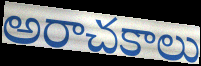
అరాచకాలు